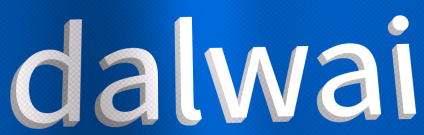
dalwai